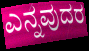
ಎನ್ನವುದರ